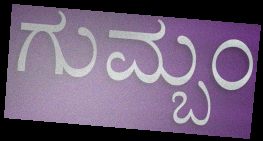
ಗುಮ್ಬಂ